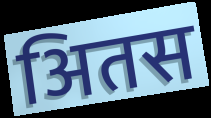
अितस